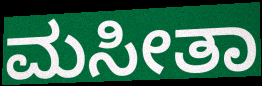
ಮಸೀತಾ